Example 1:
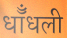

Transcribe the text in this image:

धॉँधली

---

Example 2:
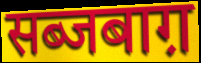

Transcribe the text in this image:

सब्जबाग़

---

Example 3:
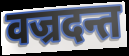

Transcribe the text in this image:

वज्रदन्त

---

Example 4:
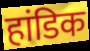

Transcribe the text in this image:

हांडिक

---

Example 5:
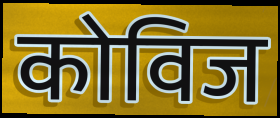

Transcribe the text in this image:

कोविज